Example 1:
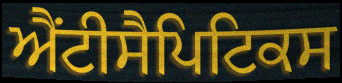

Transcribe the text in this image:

ਐਂਟੀਸੈਪਿਟਿਕਸ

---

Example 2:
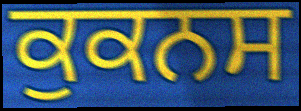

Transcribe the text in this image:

ਕੁਕਨਸ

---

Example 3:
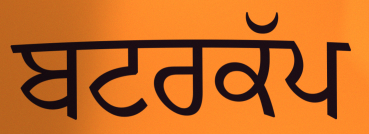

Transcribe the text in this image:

ਬਟਰਕੱਪ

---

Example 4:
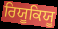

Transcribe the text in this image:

ਰਿਯੂਕਿਯੂ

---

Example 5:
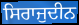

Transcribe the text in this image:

ਸਿਰਾਜੁਦੀਨ